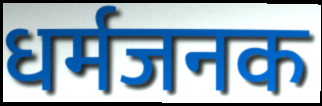
धर्मजनक